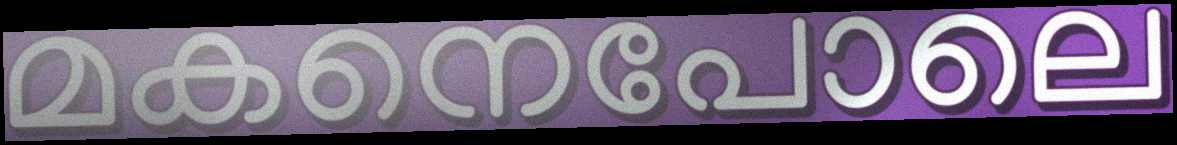
മകനെപോലെ